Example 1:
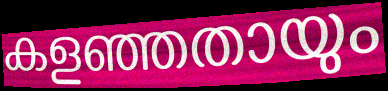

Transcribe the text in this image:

കളഞ്ഞതായും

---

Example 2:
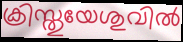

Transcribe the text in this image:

ക്രിസ്തുയേശുവിൽ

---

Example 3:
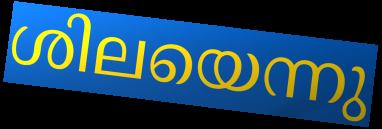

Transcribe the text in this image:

ശിലയെന്നു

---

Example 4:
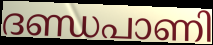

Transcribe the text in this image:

ദണ്ഡപാണി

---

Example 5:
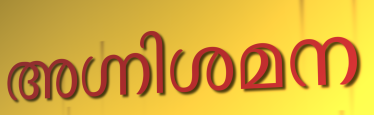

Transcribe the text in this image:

അഗ്നിശമന